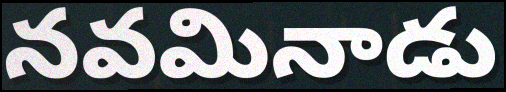
నవమినాడు